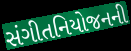
સંગીતનિયોજનની